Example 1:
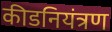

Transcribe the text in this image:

कीडनियंत्रण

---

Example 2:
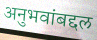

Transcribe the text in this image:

अनुभवांबद्दल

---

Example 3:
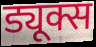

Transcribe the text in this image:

ड्यूक्स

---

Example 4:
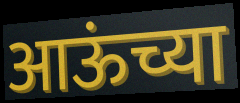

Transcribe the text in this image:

आऊंच्या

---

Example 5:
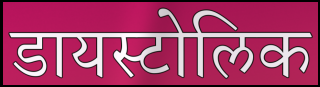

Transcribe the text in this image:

डायस्टोलिक